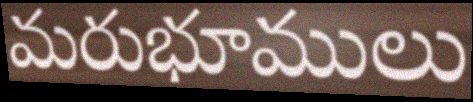
మరుభూములు